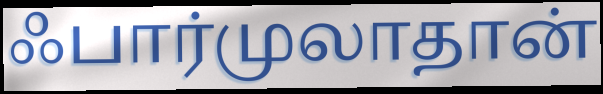
ஃபார்முலாதான்